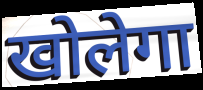
खोलेगा